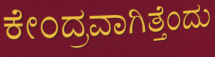
ಕೇಂದ್ರವಾಗಿತ್ತೆಂದು